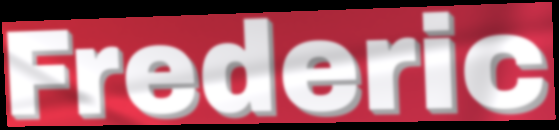
Frederic